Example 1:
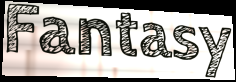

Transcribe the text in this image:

Fantasy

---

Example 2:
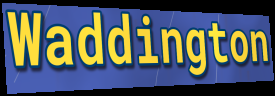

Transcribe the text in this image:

Waddington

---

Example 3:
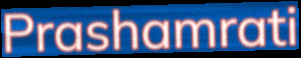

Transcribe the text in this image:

Prashamrati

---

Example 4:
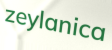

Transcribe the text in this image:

zeylanica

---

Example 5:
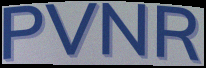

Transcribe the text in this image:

PVNR